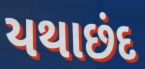
યથાછંદ